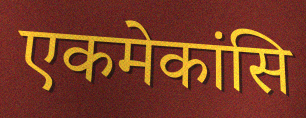
एकमेकांसि